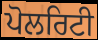
ਪੋਲਰਿਟੀ